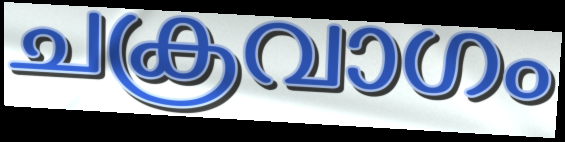
ചക്രവാഗം